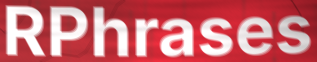
RPhrases